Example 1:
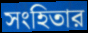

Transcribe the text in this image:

সংহিতার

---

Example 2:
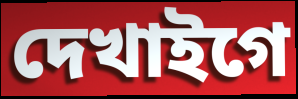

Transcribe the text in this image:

দেখাইগে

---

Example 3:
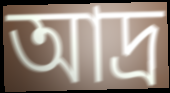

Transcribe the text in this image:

আদ্র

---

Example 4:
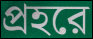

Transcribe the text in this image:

প্রহরে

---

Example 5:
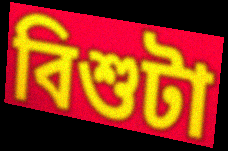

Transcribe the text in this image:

বিশুটা